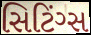
સિટિંગ્સ